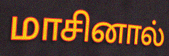
மாசினால்